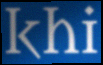
khi